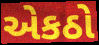
એકઠો